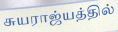
சுயராஜ்யத்தில்